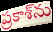
ప్రకాశ్‌ను